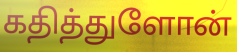
கதித்துளோன்